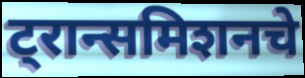
ट्रान्समिशनचे